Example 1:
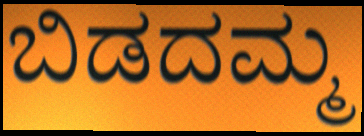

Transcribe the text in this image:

ಬಿಡದಮ್ಮ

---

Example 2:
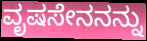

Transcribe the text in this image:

ವೃಷಸೇನನನ್ನು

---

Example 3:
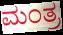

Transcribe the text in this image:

ಮಂತ್ರ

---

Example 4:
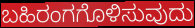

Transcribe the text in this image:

ಬಹಿರಂಗಗೊಳಿಸುವುದು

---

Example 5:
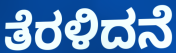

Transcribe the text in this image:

ತೆರಳಿದನೆ